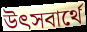
উৎসবার্থে